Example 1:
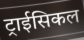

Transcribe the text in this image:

ट्राईसिकल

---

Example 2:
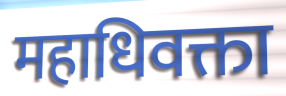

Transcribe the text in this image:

महाधिवक्ता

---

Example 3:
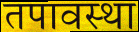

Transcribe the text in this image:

तपावस्था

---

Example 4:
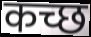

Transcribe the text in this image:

कच्छ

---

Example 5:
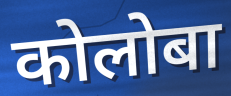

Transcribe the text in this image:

कोलोबा